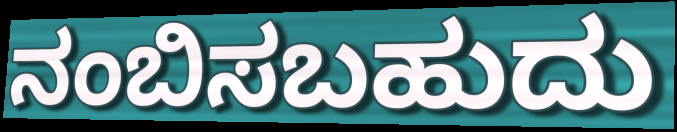
ನಂಬಿಸಬಹುದು